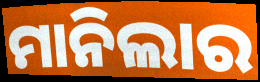
ମାନିଲାର